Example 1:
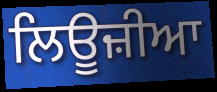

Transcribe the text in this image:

ਲਿਊਜ਼ੀਆ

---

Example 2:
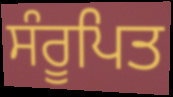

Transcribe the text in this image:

ਸੰਰੂਪਿਤ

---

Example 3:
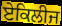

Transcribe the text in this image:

ਏਕਿਲੀਜ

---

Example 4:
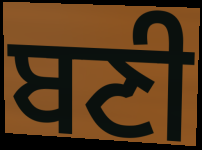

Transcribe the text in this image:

ਬਣੀ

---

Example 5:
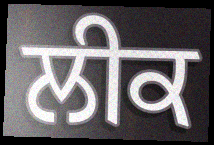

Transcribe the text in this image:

ਲੀਕ